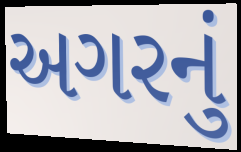
અગરનું